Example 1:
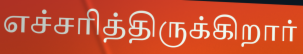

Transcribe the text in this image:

எச்சரித்திருக்கிறார்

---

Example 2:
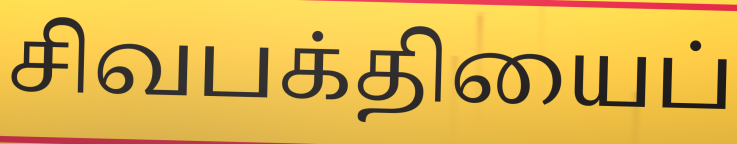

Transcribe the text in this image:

சிவபக்தியைப்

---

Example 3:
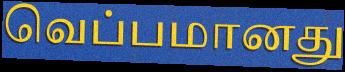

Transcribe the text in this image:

வெப்பமானது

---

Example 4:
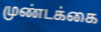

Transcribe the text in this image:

முண்டக்கை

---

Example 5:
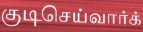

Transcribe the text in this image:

குடிசெய்வார்க்